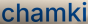
chamki